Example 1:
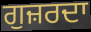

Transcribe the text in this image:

ਗੁਜ਼ਰਦਾ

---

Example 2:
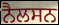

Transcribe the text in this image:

ਨੈਲਸਨ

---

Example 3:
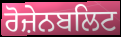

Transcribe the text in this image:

ਰੋਜ਼ੇਨਬਲਿਟ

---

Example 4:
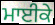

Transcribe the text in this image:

ਮਾਈਕੇ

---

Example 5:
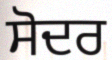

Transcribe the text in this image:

ਸੋਦਰ